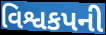
વિશ્વકપની